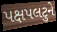
પક્ષપલટુને